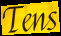
Tens